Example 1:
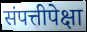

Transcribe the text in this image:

संपत्तीपेक्षा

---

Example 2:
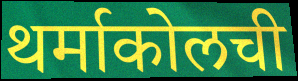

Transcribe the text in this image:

थर्माकोलची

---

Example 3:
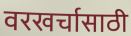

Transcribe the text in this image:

वरखर्चासाठी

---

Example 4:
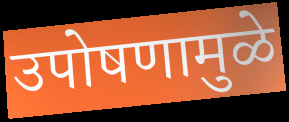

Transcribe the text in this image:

उपोषणामुळे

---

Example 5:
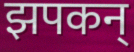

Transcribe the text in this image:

झपकन्